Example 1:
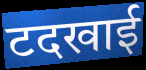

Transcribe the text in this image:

टदखाई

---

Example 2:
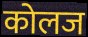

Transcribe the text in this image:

कोलज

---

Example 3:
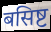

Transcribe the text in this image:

बसिष्ट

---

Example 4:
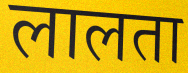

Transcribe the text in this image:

लालता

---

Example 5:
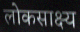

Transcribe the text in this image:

लोकसाक्ष्य